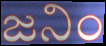
జనిం